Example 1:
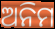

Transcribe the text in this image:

ଅନିମ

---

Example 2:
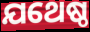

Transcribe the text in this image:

ଯଥେଷ୍ଠ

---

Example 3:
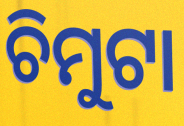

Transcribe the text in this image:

ଚିମୁଟା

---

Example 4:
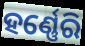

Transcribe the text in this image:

ହର୍ଣ୍ଣେରି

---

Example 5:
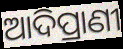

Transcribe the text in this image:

ଆଦିପ୍ରାଣୀ